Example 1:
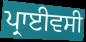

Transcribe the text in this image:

ਪ੍ਰਾਈਵਸੀ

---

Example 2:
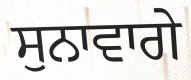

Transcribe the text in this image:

ਸੁਨਾਵਾਗੇ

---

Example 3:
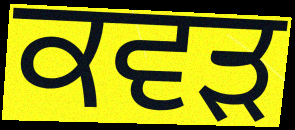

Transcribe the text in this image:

ਕਵੜ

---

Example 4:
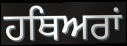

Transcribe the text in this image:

ਹਥਿਅਰਾਂ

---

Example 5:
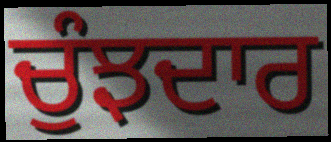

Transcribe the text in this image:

ਚੁੰਝਦਾਰ